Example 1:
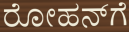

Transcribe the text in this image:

ರೋಹನ್‌ಗೆ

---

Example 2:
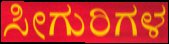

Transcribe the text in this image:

ಸೀಗುರಿಗಳ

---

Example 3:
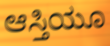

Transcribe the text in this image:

ಆಸ್ತಿಯೂ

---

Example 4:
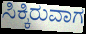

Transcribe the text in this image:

ಸಿಕ್ಕಿರುವಾಗ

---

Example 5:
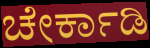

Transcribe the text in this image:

ಚೇರ್ಕಾಡಿ